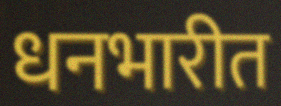
धनभारीत